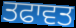
ਤਫਾਵਤ